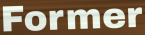
Former